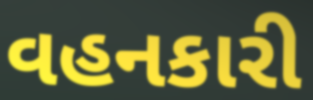
વહનકારી